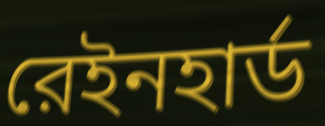
রেইনহার্ড